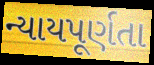
ન્યાયપૂર્ણતા